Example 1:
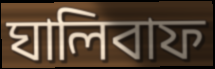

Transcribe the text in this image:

ঘালিবাফ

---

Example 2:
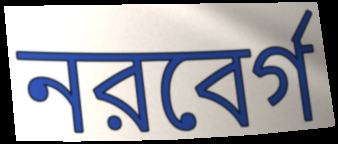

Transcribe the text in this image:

নরবের্গ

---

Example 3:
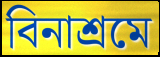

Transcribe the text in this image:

বিনাশ্রমে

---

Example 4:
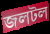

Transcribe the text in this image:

জলটল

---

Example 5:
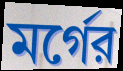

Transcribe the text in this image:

মর্গের